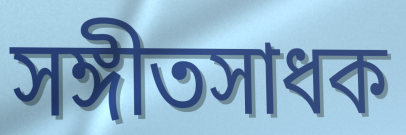
সঙ্গীতসাধক